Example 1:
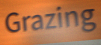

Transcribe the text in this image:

Grazing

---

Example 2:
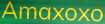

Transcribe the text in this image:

Amaxoxo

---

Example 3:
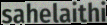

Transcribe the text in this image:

sahelaithi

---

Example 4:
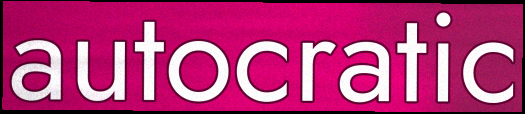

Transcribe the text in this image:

autocratic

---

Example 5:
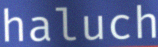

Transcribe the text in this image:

haluch